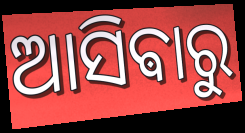
ଆସିଵାରୁ